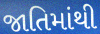
જાતિમાંથી